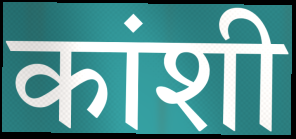
कांशी